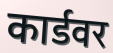
कार्डवर